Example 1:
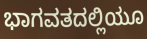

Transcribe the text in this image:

ಭಾಗವತದಲ್ಲಿಯೂ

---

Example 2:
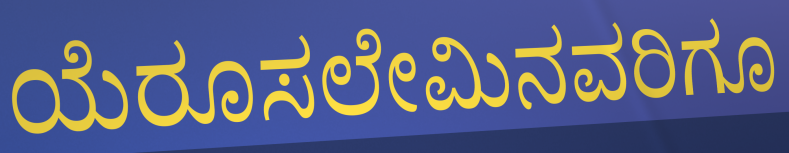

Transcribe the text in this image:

ಯೆರೂಸಲೇಮಿನವರಿಗೂ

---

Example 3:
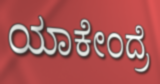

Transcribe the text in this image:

ಯಾಕೇಂದ್ರೆ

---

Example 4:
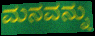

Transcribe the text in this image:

ಮನವನ್ನು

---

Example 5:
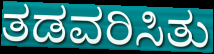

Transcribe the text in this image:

ತಡವರಿಸಿತು